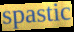
spastic